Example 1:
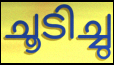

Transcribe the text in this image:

ചൂടിച്ചു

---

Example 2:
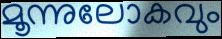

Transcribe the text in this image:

മൂന്നുലോകവും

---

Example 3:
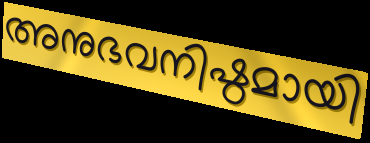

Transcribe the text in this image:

അനുഭവനിഷ്ഠമായി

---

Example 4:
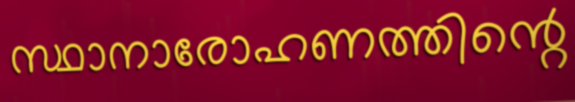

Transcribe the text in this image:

സ്ഥാനാരോഹണത്തിന്റെ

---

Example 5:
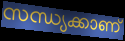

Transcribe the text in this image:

സന്ധ്യക്കാണ്